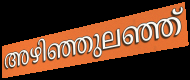
അഴിഞ്ഞുലഞ്ഞ്